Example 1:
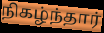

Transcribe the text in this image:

நிகழ்ந்தார்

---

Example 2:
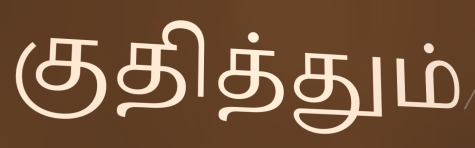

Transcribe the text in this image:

குதித்தும்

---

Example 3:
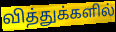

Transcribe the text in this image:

வித்துக்களில்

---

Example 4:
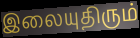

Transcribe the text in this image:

இலையுதிரும்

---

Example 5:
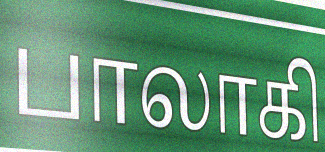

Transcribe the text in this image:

பாலாகி